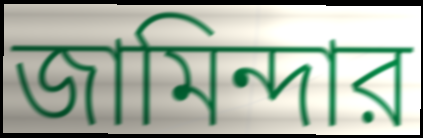
জামিন্দার